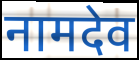
नामदेव